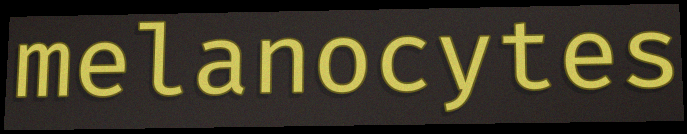
melanocytes